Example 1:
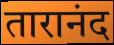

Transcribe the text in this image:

तारानंद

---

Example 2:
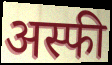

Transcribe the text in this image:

अस्फी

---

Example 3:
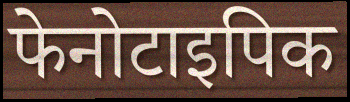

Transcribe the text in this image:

फेनोटाइपिक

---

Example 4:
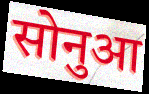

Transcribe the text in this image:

सोनुआ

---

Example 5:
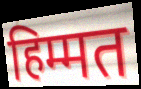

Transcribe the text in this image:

हिम्‍मत